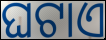
ଘଟାଏ